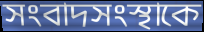
সংবাদসংস্থাকে